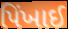
પિંખાઈ